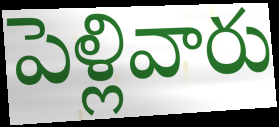
పెళ్లివారు